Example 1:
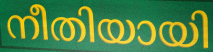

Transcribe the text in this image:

നീതിയായി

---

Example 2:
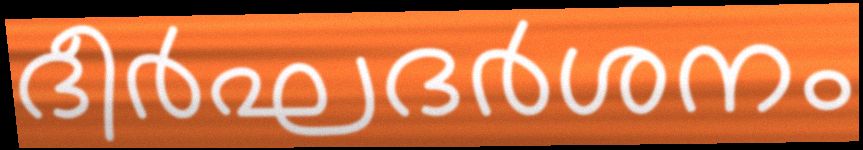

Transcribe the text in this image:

ദീർഘദർശനം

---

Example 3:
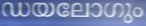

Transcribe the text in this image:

ഡയലോഗും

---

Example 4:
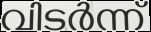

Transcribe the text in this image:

വിടർന്ന്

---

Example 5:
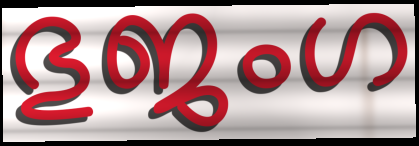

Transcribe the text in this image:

ഭുജംഗ